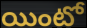
యింటో